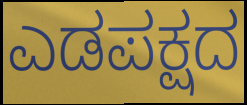
ಎಡಪಕ್ಷದ